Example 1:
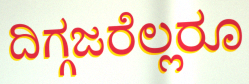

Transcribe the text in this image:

ದಿಗ್ಗಜರೆಲ್ಲರೂ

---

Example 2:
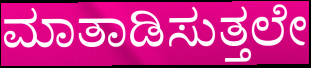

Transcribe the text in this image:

ಮಾತಾಡಿಸುತ್ತಲೇ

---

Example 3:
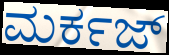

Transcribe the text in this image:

ಮರ್ಕಜ್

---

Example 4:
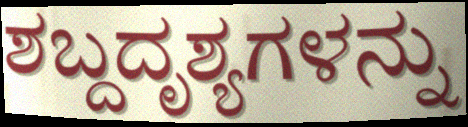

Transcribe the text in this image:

ಶಬ್ದದೃಶ್ಯಗಳನ್ನು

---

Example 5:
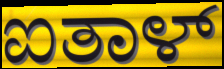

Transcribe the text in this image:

ಐತಾಳ್